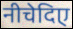
नीचेदिए